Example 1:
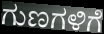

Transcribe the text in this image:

ಗುಣಗಳಿಗೆ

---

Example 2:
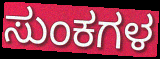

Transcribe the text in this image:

ಸುಂಕಗಳ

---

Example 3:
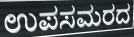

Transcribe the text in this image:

ಉಪಸಮರದ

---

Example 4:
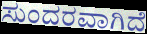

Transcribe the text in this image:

ಸುಂದರವಾಗಿದೆ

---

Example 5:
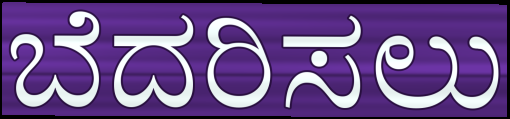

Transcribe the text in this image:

ಬೆದರಿಸಲು